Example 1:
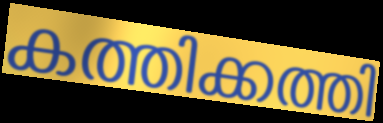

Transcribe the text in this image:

കത്തിക്കത്തി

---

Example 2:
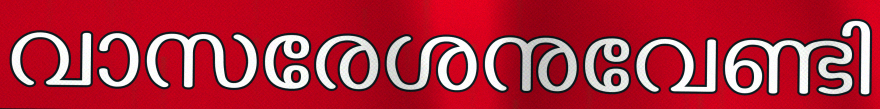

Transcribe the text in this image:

വാസരേശനുവേണ്ടി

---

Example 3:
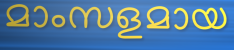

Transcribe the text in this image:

മാംസളമായ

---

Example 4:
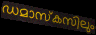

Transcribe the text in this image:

ഡമാസ്കസിലും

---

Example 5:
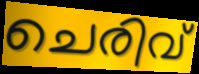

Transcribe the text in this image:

ചെരിവ്